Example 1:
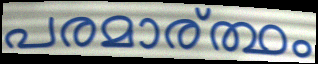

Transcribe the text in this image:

പരമാര്ത്ഥം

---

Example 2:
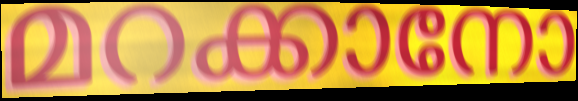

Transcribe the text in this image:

മറക്കാനോ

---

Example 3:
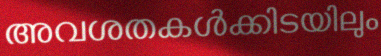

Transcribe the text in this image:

അവശതകൾക്കിടയിലും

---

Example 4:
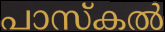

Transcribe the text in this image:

പാസ്കൽ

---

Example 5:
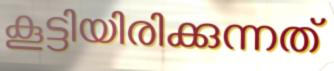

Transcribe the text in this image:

കൂട്ടിയിരിക്കുന്നത്